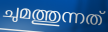
ചുമത്തുന്നത്